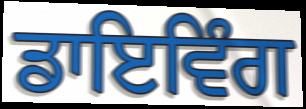
ਡਾਇਵਿੰਗ